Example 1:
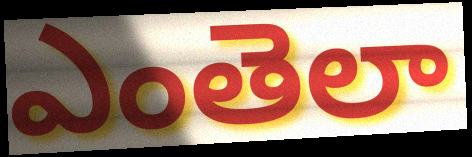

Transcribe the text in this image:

ఎంతెలా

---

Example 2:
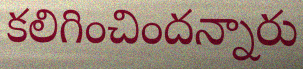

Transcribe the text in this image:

కలిగించిందన్నారు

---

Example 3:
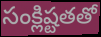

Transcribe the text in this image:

సంక్లిష్టతతో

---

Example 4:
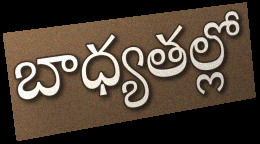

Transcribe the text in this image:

బాధ్యతల్లో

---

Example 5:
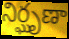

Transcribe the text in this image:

నిర్ఘృణా